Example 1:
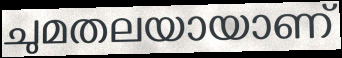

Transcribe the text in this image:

ചുമതലയായാണ്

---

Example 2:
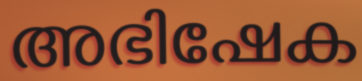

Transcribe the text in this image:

അഭിഷേക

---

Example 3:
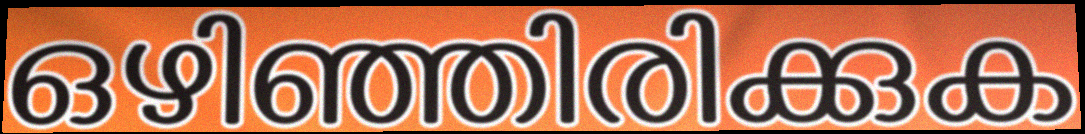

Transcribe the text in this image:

ഒഴിഞ്ഞിരിക്കുക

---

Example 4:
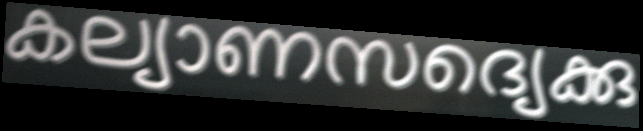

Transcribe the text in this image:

കല്യാണസദ്യെക്കു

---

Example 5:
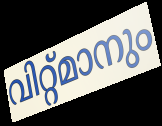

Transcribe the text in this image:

വിറ്റ്മാനും